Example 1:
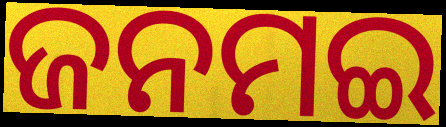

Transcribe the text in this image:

ଜନମଇ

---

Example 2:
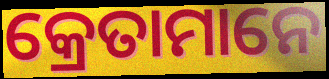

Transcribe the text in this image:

କ୍ରେତାମାନେ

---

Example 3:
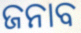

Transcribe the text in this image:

ଜନାବ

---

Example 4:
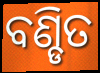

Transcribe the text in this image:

ବଣ୍ଡିତ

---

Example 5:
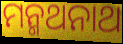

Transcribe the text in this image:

ମନ୍ମଥନାଥ